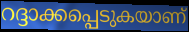
റദ്ദാക്കപ്പെടുകയാണ്